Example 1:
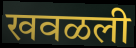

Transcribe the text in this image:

खवळली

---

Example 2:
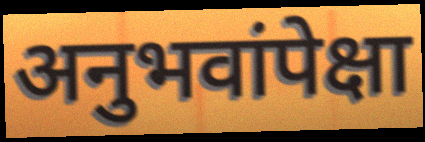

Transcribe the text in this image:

अनुभवांपेक्षा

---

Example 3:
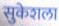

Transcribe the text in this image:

सुकेशला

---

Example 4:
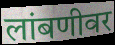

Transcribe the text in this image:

लांबणीवर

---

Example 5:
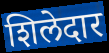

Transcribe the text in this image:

शिलेदार